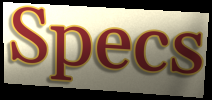
Specs